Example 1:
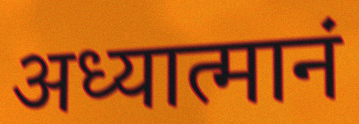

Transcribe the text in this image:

अध्यात्मानं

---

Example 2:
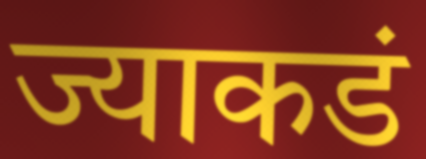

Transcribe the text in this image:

ज्याकडं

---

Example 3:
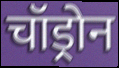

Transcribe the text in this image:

चॉड्रोन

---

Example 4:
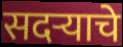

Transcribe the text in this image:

सदऱ्याचे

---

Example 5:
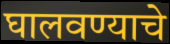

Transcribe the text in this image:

घालवण्याचे